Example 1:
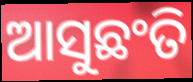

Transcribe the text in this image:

ଆସୁଛଂତି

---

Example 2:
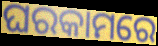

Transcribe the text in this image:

ଘରକାମରେ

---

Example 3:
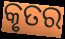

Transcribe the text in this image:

କୃତର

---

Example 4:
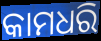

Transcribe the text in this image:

କାମଧରି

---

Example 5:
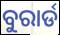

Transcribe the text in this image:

ବୁରାର୍ଡ